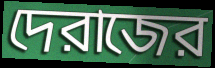
দেরাজের